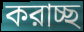
করাচ্ছ